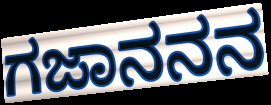
ಗಜಾನನನ